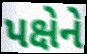
પક્ષેને